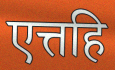
एत्तहि